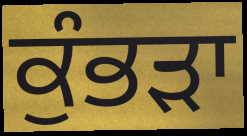
ਕੁੰਭੜਾ